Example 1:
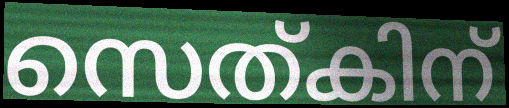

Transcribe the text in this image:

സെത്കിന്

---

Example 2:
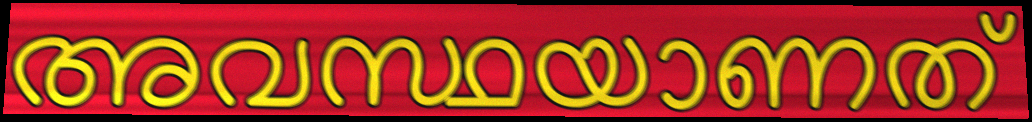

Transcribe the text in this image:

അവസ്ഥയാണത്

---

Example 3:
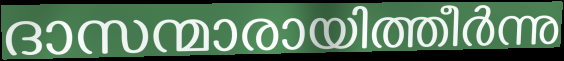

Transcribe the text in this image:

ദാസന്മാരായിത്തീർന്നു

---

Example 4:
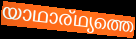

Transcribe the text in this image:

യാഥാര്ഥ്യത്തെ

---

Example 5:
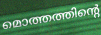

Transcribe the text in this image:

മൊത്തത്തിന്റെ